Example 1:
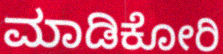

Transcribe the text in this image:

ಮಾಡಿಕೋರಿ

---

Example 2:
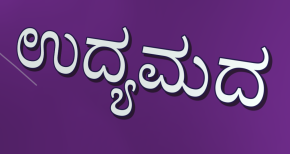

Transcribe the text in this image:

ಉದ್ಯಮದ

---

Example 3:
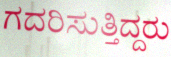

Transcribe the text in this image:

ಗದರಿಸುತ್ತಿದ್ದರು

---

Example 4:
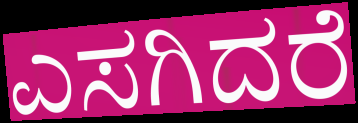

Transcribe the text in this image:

ಎಸಗಿದರೆ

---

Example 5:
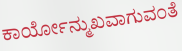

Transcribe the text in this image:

ಕಾರ್ಯೋನ್ಮುಖವಾಗುವಂತೆ